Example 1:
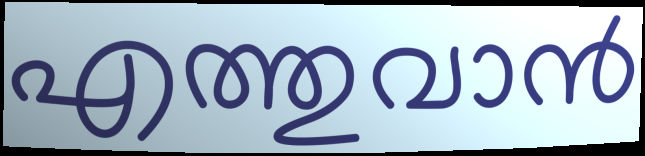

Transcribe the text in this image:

എത്തുവാൻ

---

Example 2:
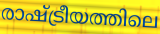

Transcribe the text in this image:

രാഷ്ട്രീയത്തിലെ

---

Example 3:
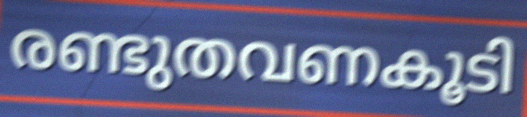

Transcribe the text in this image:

രണ്ടുതവണകൂടി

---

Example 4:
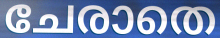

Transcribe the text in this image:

ചേരാതെ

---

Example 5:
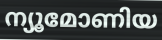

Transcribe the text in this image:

ന്യൂമോണിയ